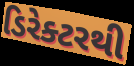
ડિરેક્ટરથી